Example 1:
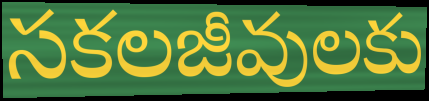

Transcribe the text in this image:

సకలజీవులకు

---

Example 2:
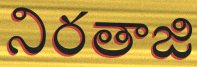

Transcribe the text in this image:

నిరతాజి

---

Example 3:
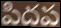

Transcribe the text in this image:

పిదప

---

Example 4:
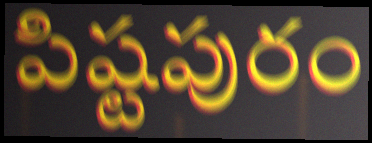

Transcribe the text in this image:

పిష్టపురం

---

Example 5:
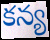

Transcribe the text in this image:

కన్య